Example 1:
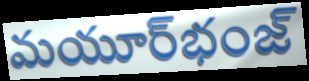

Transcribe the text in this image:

మయూర్‌భంజ్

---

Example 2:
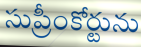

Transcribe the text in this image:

సుప్రీంకోర్టును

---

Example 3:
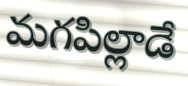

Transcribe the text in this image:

మగపిల్లాడే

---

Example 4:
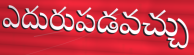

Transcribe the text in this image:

ఎదురుపడవచ్చు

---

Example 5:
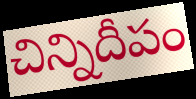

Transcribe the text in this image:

చిన్నిదీపం